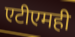
एटीएमही